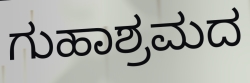
ಗುಹಾಶ್ರಮದ